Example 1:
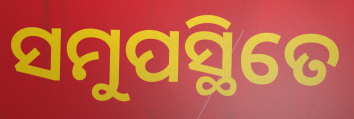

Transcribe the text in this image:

ସମୁପସ୍ଥିତେ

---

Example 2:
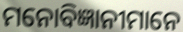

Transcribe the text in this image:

ମନୋବିଜ୍ଞାନୀମାନେ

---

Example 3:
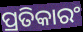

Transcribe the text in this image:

ପ୍ରତିକାରଂ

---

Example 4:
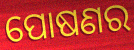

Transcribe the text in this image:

ପୋଷଣର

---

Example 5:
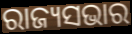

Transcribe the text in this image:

ରାଜ୍ୟସଭାର